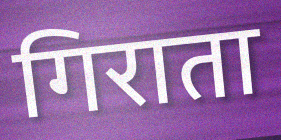
गिराता